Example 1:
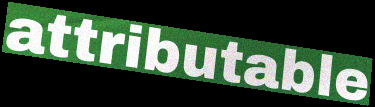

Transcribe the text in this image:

attributable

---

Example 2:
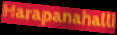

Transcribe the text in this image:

Harapanahalli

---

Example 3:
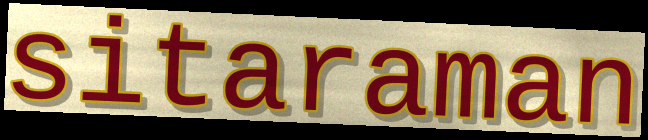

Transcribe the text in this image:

sitaraman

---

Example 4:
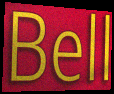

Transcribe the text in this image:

Bell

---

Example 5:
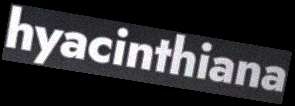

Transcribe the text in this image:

hyacinthiana